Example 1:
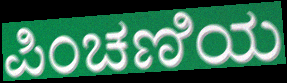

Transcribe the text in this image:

ಪಿಂಚಣಿಯ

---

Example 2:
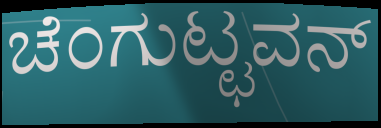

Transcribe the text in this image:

ಚೆಂಗುಟ್ಟವನ್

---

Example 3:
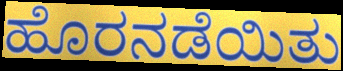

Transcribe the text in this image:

ಹೊರನಡೆಯಿತು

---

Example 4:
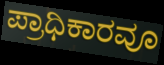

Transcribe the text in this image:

ಪ್ರಾಧಿಕಾರವೂ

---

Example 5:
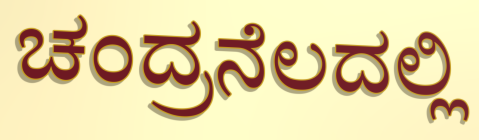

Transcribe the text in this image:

ಚಂದ್ರನೆಲದಲ್ಲಿ